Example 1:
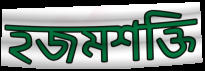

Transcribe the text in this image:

হজমশক্তি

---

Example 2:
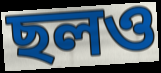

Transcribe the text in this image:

ছলও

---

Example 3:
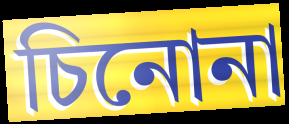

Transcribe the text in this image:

চিনোনা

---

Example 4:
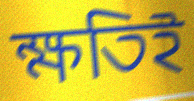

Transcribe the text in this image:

ক্ষতিই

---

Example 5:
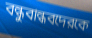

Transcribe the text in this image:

বন্ধুবান্ধবদেরকে